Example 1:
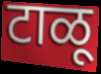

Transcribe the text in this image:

टाळू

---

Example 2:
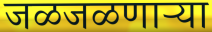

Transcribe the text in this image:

जळजळणाऱ्या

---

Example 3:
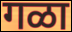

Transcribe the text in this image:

गळा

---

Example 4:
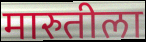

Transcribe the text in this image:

मारुतीला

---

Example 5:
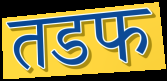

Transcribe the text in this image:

तडफ